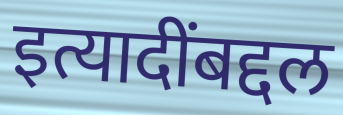
इत्यादींबद्दल